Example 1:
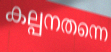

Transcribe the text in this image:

കല്പനതന്നെ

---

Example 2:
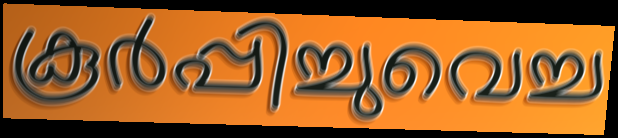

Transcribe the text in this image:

കൂർപ്പിച്ചുവെച്ച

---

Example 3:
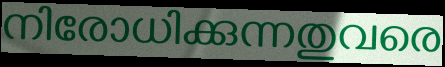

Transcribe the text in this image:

നിരോധിക്കുന്നതുവരെ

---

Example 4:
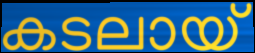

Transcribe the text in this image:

കടലായ്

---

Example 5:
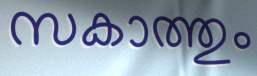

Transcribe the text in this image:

സകാത്തും